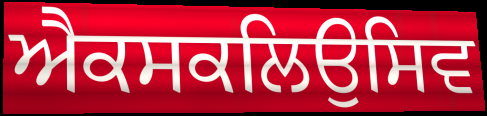
ਐਕਸਕਲਿਉਸਿਵ